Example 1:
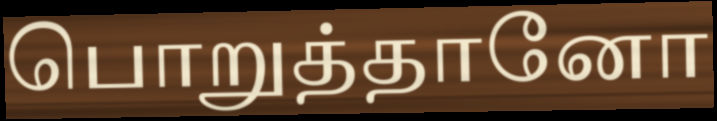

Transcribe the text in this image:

பொறுத்தானோ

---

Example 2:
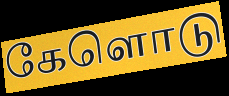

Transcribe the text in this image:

கேளொடு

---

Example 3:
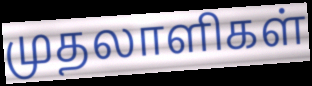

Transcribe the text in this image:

முதலாளிகள்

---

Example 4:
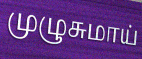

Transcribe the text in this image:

முழுசுமாய்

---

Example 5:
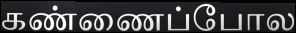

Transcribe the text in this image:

கண்ணைப்போல